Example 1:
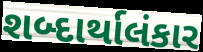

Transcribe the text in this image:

શબ્દાર્થાલંકાર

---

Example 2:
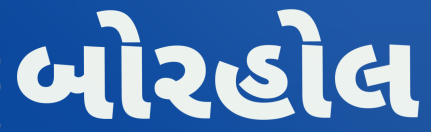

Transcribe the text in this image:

બોરહોલ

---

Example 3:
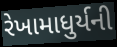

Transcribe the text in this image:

રેખામાધુર્યની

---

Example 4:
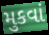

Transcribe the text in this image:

મુકવાં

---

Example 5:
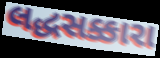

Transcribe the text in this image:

લદ્ધસક્કારા